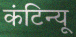
कंटिन्यू